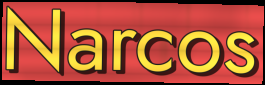
Narcos